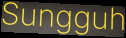
Sungguh